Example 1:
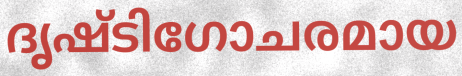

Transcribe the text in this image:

ദൃഷ്ടിഗോചരമായ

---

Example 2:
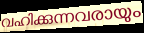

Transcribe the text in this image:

വഹിക്കുന്നവരായും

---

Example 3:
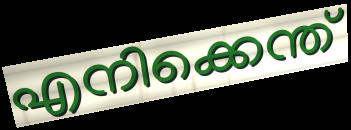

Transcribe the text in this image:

എനിക്കെന്ത്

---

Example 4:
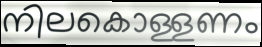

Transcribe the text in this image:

നിലകൊള്ളണം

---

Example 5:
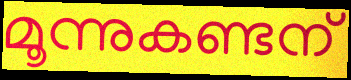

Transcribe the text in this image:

മൂന്നുകണ്ടന്